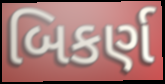
બિકર્ણ